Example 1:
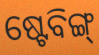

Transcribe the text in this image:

ଷ୍ଟେବିଙ୍ଗ୍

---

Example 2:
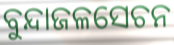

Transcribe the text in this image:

ବୁନ୍ଦାଜଳସେଚନ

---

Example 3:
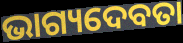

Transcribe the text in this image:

ଭାଗ୍ୟଦେବତା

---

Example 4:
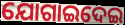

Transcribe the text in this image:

ଯୋଗାଇଦେଇ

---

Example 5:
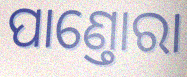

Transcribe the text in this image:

ପାଣ୍ତୋରା